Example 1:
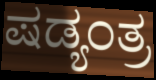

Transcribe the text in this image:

ಷಡ್ಯಂತ್ರ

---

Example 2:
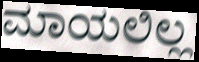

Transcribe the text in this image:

ಮಾಯಲಿಲ್ಲ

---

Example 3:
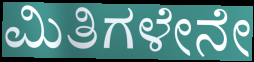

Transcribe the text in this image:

ಮಿತಿಗಳೇನೇ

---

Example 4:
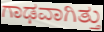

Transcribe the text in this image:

ಗಾಢವಾಗಿತ್ತು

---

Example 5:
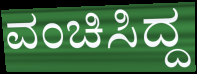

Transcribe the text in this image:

ವಂಚಿಸಿದ್ದ